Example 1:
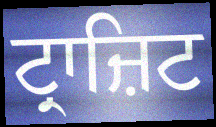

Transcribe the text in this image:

ਟ੍ਰਾਜ਼ਿਟ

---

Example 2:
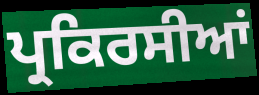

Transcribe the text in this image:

ਪ੍ਰਕਿਰਸੀਆਂ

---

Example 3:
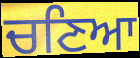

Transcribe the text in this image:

ਚਣਿਆ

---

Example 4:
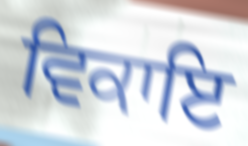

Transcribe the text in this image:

ਵਿਕਾਇ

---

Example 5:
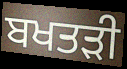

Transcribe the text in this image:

ਬਖਤੜੀ